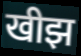
खीझ